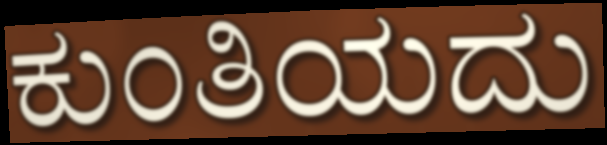
ಕುಂತಿಯದು